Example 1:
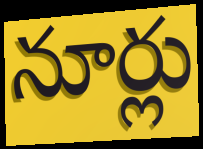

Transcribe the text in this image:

నూర్లు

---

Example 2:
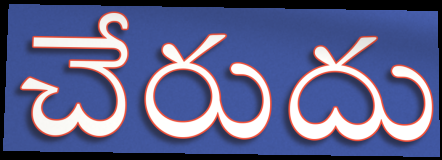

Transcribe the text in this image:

చేరుదు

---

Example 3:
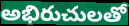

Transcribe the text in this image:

అభిరుచులతో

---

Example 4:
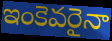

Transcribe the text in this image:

ఇంకెవరైనా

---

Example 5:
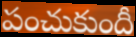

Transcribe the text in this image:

పంచుకుందీ